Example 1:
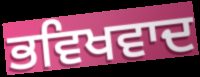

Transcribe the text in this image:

ਭਵਿਖਵਾਦ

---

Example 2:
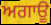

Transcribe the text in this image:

ਅਗਾਊ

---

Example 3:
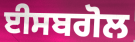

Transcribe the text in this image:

ਈਸਬਗੋਲ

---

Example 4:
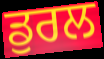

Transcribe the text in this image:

ਡੁਰਲ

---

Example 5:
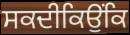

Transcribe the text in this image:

ਸਕਦੀਕਿਉਂਕਿ